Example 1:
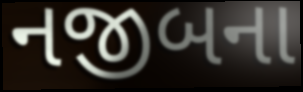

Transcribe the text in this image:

નજીબના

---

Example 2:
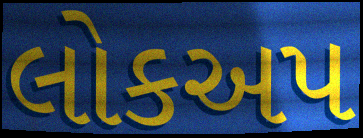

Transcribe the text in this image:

લોકઅપ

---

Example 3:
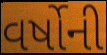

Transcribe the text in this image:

વર્ષોની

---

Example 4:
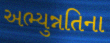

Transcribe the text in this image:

અભ્યુન્નતિના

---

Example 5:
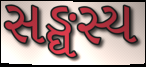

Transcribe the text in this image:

સઙ્ઘસ્ય